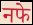
नफे